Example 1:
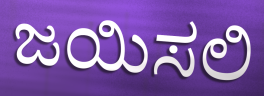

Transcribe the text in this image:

ಜಯಿಸಲಿ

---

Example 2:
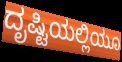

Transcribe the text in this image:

ದೃಷ್ಟಿಯಲ್ಲಿಯೂ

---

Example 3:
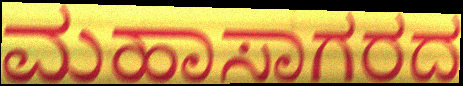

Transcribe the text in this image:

ಮಹಾಸಾಗರದ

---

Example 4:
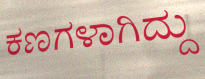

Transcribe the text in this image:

ಕಣಗಳಾಗಿದ್ದು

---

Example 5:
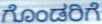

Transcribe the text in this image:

ಗೊಂಡರಿಗೆ